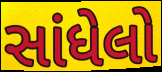
સાંધેલો